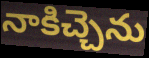
నాకిచ్చెను